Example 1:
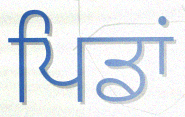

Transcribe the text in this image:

ਪਿਡਾਂ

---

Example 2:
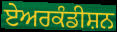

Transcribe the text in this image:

ਏਅਰਕੰਡੀਸ਼ਨ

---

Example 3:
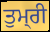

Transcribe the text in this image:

ਤੁਮ੍‍ਰੀ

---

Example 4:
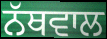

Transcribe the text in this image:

ਨੱਥਵਾਲ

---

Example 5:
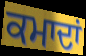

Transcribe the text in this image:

ਕਮਾਦਾਂ